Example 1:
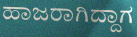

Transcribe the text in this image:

ಹಾಜರಾಗಿದ್ದಾಗ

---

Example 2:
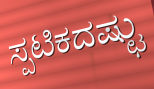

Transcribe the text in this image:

ಸ್ಪಟಿಕದಷ್ಟು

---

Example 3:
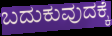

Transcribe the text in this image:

ಬದುಕುವುದಕ್ಕೆ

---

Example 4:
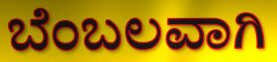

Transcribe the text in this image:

ಬೆಂಬಲವಾಗಿ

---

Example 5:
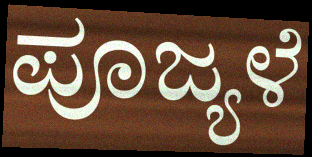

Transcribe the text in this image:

ಪೂಜ್ಯಳೆ